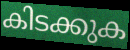
കിടക്കുക